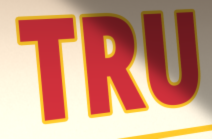
TRU